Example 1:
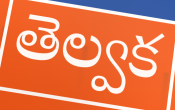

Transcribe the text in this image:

తెల్వక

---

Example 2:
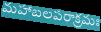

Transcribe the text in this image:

మహాబలపరాక్రమః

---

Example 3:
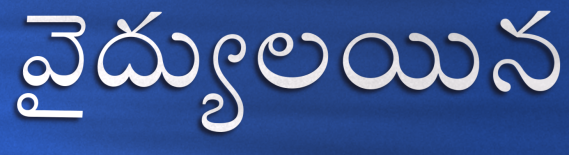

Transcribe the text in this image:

వైద్యులయిన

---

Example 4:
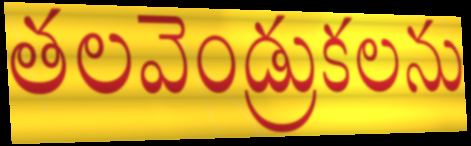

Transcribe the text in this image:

తలవెండ్రుకలను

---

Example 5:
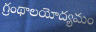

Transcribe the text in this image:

గ్రంథాలయోద్యమం